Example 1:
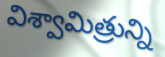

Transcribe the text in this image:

విశ్వామిత్రున్ని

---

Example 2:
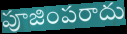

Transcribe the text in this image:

పూజింపరాదు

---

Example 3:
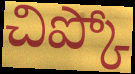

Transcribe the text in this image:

చిప్కో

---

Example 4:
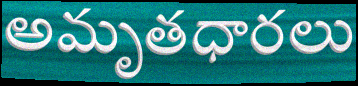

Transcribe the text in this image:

అమృతధారలు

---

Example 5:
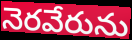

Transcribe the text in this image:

నెరవేరును